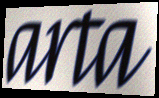
arta